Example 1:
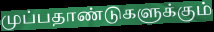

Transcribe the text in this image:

முப்பதாண்டுகளுக்கும்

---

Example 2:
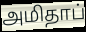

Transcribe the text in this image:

அமிதாப்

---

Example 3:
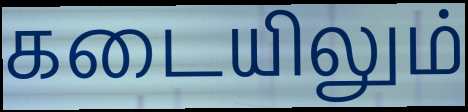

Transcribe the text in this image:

கடையிலும்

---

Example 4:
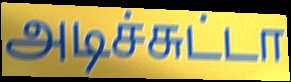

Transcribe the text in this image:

அடிச்சுட்டா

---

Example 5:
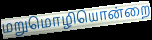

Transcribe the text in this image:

மறுமொழியொன்றை